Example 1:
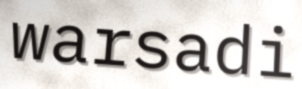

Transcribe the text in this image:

warsadi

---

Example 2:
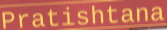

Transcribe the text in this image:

Pratishtana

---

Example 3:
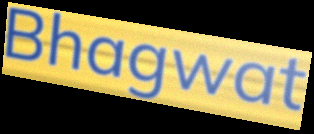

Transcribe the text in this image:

Bhagwat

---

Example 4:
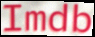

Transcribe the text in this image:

Imdb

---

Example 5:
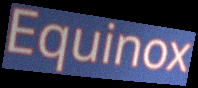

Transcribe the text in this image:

Equinox